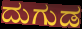
ದುಗುಡ